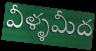
వీళ్ళమీద